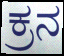
ಕ್ರನ